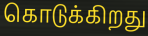
கொடுக்கிறது